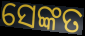
ସେଙ୍କତ